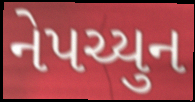
નેપચ્યુન